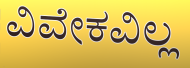
ವಿವೇಕವಿಲ್ಲ